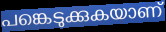
പങ്കെടുക്കുകയാണ്